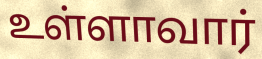
உள்ளாவார்